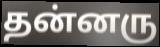
தன்னரு